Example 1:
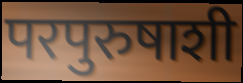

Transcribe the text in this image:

परपुरुषाशी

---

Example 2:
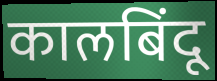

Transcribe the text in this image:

कालबिंदू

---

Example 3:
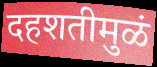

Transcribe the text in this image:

दहशतीमुळं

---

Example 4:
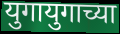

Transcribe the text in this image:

युगायुगाच्या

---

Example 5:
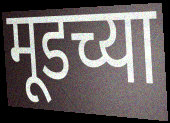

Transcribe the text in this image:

मूडच्या